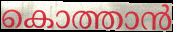
കൊത്താൻ